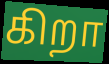
கிறா